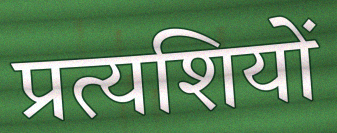
प्रत्यशियों